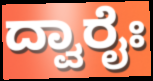
ದ್ವಾರೈಃ